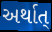
અર્થાત્